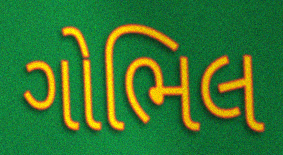
ગોભિલ